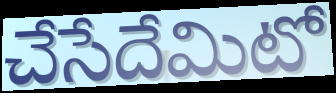
చేసేదేమిటో